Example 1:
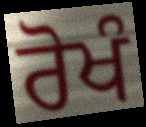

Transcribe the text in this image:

ਰੋਖੰ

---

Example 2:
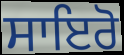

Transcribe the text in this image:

ਸਾਇਰੋ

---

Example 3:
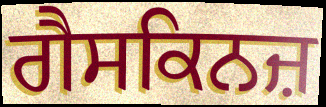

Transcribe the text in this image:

ਗੈਸਕਿਨਜ਼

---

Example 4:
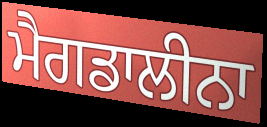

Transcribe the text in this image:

ਮੈਗਡਾਲੀਨਾ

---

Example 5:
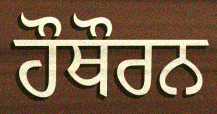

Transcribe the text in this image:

ਹੌਥੌਰਨ